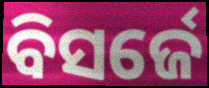
ବିସର୍ଜେ